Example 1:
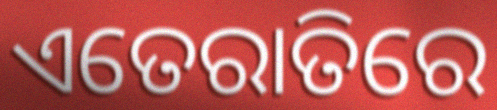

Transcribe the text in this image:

ଏତେରାତିରେ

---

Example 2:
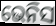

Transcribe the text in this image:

ଭେନିସ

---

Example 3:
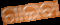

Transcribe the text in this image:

ଗାଇବା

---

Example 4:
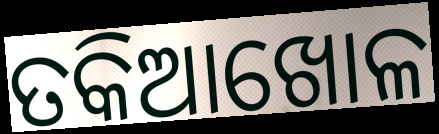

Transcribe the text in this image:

ତକିଆଖୋଳ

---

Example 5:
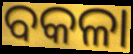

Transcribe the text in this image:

ବକଳା